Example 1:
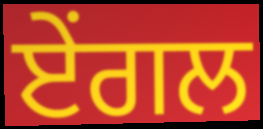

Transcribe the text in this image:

ਏਂਗਲ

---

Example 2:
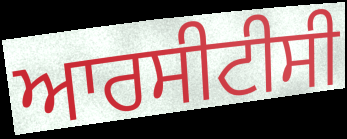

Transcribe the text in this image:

ਆਰਸੀਟੀਸੀ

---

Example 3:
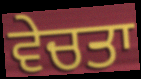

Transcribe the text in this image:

ਵੇਚਤਾ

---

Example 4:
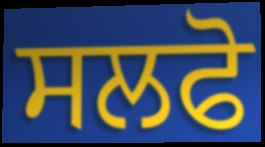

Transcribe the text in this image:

ਸਲਫੋ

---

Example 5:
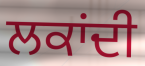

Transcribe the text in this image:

ਲਕਾਂਦੀ